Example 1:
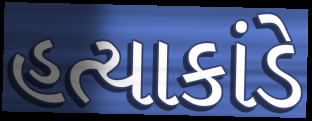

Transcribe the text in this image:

હત્યાકાંડે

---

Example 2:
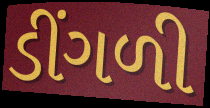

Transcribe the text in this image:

ડીંગળી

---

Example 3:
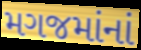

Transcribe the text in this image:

મગજમાંનાં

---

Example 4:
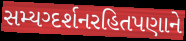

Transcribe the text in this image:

સમ્યગ્દર્શનરહિતપણાને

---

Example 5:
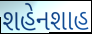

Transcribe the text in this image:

શહેનશાહ